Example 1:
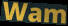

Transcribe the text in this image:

Wam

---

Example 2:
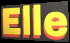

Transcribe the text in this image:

Elle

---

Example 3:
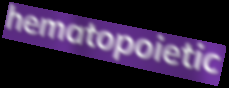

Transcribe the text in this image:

hematopoietic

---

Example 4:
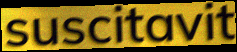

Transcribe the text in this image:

suscitavit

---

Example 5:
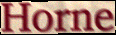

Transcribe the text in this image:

Horne